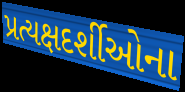
પ્રત્યક્ષદર્શીઓના